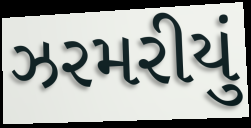
ઝરમરીયું